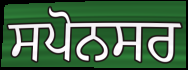
ਸਪੋਨਸਰ